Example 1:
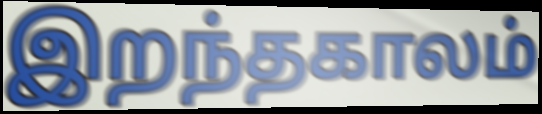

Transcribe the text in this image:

இறந்தகாலம்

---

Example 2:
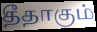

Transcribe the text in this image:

தீதாகும்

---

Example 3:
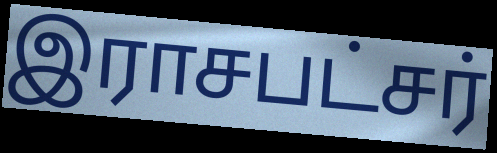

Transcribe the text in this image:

இராசபட்சர்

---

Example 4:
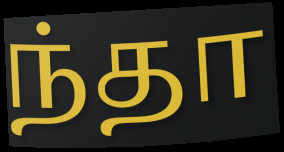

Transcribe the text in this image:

ந்தா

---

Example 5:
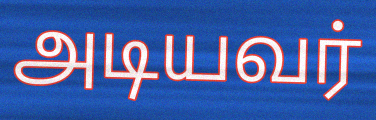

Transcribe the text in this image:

அடியவர்